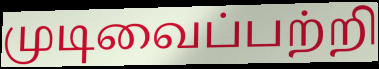
முடிவைப்பற்றி